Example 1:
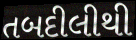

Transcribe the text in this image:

તબદીલીથી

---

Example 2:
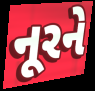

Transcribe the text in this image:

નૂરને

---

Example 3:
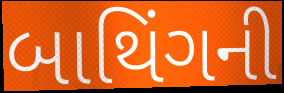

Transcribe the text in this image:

બાથિંગની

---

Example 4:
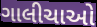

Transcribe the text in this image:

ગાલીચાઓ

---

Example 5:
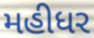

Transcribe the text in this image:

મહીધર